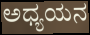
ಅಧ್ಯಯನ